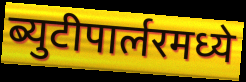
ब्युटीपार्लरमध्ये